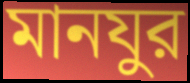
মানযুর